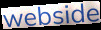
webside